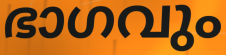
ഭാഗവും